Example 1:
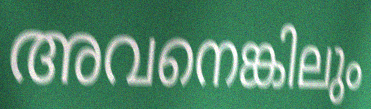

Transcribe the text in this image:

അവനെങ്കിലും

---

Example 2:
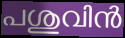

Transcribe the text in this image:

പശുവിൻ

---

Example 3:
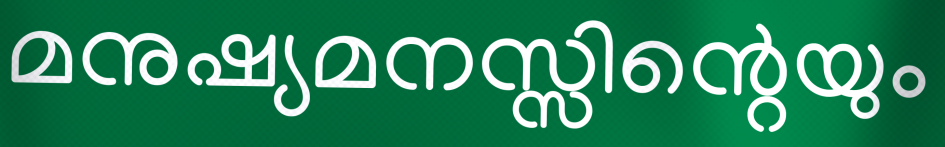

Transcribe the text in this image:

മനുഷ്യമനസ്സിന്റെയും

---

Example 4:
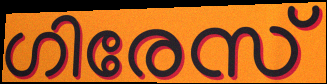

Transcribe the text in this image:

ഗിരേസ്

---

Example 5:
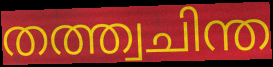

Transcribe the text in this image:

തത്ത്വചിന്ത